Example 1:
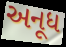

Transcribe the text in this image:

અનૂધ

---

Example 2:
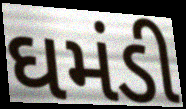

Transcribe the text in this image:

ઘમંડી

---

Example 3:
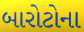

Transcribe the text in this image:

બારોટોના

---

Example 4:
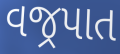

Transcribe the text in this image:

વજ્રપાત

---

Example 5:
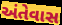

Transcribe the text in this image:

અંતેવાસ